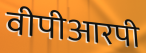
वीपीआरपी